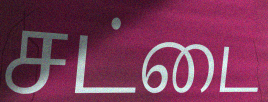
சட்டை